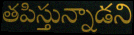
తపిస్తున్నాడని